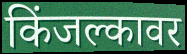
किंजल्कावर